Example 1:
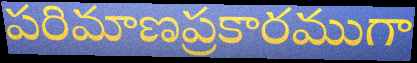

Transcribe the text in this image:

పరిమాణప్రకారముగా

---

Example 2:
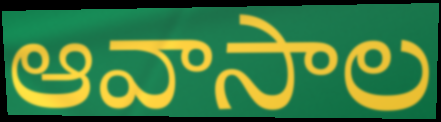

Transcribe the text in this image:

ఆవాసాల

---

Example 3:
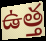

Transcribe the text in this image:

ఉత్త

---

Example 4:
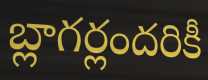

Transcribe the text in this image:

బ్లాగర్లందరికీ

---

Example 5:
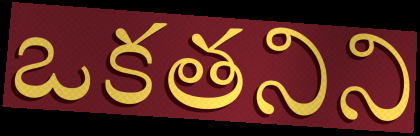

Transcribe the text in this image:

ఒకతనిని